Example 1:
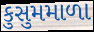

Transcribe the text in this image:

કુસુમમાળા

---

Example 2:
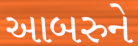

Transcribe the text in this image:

આબરુને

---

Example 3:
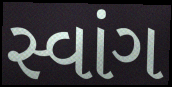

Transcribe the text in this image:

સ્વાંગ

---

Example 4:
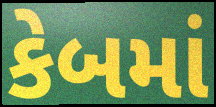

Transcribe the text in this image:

કેબમાં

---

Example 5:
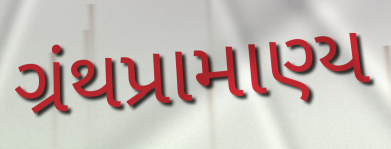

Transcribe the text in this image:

ગ્રંથપ્રામાણ્ય